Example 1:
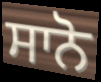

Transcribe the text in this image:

ਸਾਨੋ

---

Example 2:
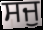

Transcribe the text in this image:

ਸਜੁ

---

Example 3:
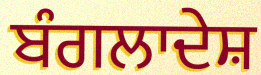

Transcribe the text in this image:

ਬੰਗਲਾਦੇਸ਼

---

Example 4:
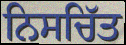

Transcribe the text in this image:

ਨਿਸਚਿੱਤ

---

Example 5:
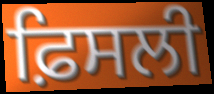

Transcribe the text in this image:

ਫ਼ਿਸਲੀ